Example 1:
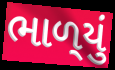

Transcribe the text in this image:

ભાળ્‌યું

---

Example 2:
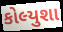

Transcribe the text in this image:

કોલ્યુશા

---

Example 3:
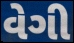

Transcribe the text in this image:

વેગી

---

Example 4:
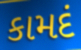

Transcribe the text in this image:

કામદં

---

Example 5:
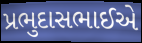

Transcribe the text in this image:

પ્રભુદાસભાઈએ